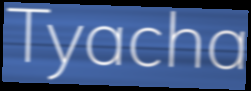
Tyacha